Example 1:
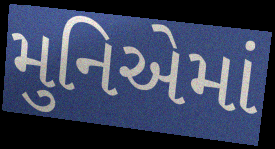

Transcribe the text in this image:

મુનિએમાં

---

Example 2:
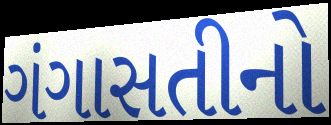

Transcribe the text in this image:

ગંગાસતીનો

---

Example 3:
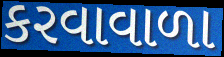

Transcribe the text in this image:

કરવાવાળા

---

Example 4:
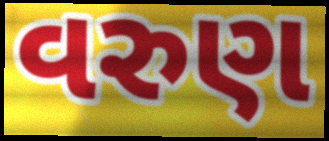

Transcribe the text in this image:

વરુણ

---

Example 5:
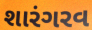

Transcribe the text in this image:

શારંગરવ